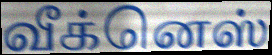
வீக்னெஸ்